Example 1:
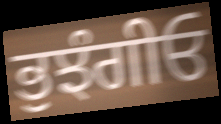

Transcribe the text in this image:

ਭੁਝੰਗੀਓ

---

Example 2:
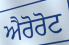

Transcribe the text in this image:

ਐਰੋਰੋਟ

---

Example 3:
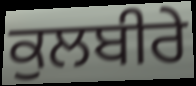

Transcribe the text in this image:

ਕੁਲਬੀਰੇ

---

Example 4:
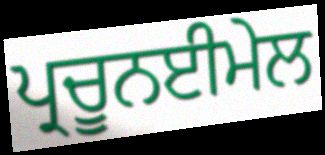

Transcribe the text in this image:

ਪ੍ਰਚੂਨਈਮੇਲ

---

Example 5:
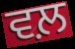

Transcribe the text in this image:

ਵਲ਼